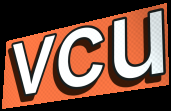
vcu